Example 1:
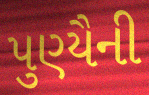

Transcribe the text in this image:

પુણ્યૈની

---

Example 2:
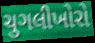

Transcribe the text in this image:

ચુગલીખોરો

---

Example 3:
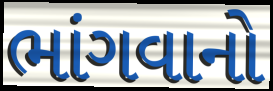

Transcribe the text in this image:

ભાંગવાનો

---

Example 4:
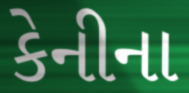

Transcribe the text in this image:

કેનીના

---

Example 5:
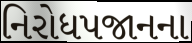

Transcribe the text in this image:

નિરોધપજાનના